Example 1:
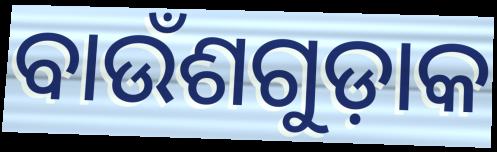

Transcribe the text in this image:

ବାଉଁଶଗୁଡ଼ାକ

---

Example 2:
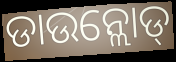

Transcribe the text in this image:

ଡାଉନ୍ଲୋଡ୍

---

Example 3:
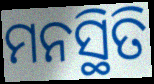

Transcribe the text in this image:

ମନସ୍ଥିତି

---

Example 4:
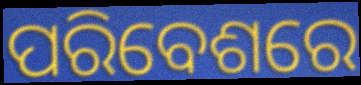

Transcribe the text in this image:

ପରିବେଶରେ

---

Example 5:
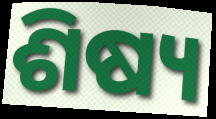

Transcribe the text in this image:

ଶିଷ୍ୟ